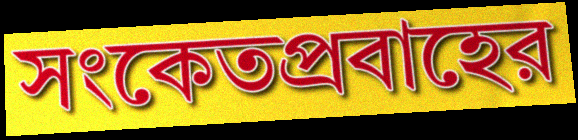
সংকেতপ্রবাহের